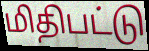
மிதிபட்டு